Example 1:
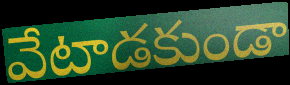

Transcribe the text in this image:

వేటాడకుండా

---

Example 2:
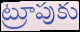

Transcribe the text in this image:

ట్రూపుకు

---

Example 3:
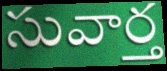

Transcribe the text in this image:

సువార్త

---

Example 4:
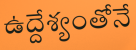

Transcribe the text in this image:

ఉద్దేశ్యంతోనే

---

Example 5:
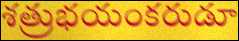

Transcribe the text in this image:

శత్రుభయంకరుడూ